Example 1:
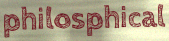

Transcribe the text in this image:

philosphical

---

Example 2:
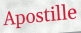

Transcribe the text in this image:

Apostille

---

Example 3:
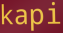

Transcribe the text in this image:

kapi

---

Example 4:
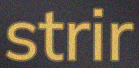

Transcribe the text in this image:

strir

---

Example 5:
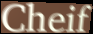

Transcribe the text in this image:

Cheif